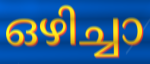
ഒഴിച്ചാ